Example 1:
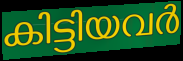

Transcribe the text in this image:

കിട്ടിയവർ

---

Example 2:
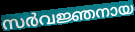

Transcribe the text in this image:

സർവജ്ഞനായ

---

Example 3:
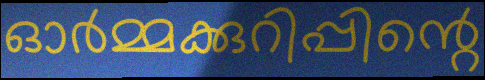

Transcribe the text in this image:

ഓർമ്മക്കുറിപ്പിന്റെ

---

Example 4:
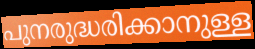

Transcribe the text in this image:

പുനരുദ്ധരിക്കാനുള്ള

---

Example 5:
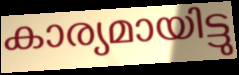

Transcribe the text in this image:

കാര്യമായിട്ടു